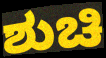
ಶುಚಿ